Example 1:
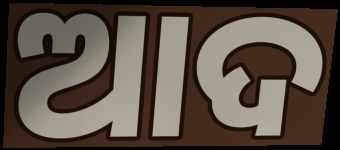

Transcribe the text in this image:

ଆଦ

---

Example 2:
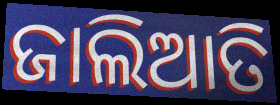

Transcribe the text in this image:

ଜାଲିଆତି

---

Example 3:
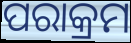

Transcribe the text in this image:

ପରାକ୍ରମ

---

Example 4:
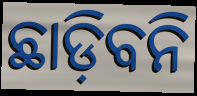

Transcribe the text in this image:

ଛାଡ଼ିବନି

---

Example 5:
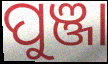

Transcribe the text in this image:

ପୁଞ୍ଜା